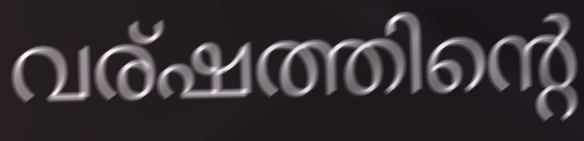
വര്ഷത്തിന്റെ